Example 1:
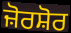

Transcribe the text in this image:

ਜ਼ੋਰਸ਼ੋਰ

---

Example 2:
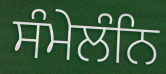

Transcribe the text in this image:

ਸੰਮੇਲੰਨਿ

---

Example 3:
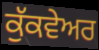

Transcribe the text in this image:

ਕੁੱਕਵੇਅਰ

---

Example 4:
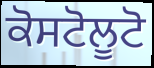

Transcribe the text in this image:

ਕੋਸਟੋਲੂਟੋ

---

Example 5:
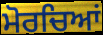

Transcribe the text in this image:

ਮੋਰਚਿਆਂ